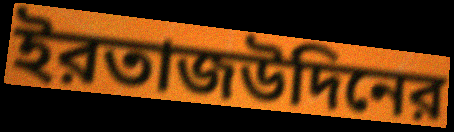
ইরতাজউদিনের